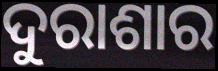
ଦୁରାଶାର